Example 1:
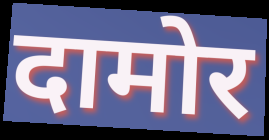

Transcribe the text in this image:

दामोर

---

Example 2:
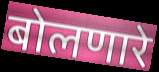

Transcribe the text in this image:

बोलणारे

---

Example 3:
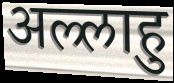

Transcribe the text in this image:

अल्लाहु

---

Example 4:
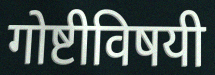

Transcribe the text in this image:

गोष्टीविषयी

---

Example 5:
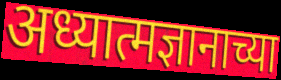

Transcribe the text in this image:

अध्यात्मज्ञानाच्या